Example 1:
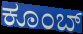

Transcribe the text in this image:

ಕೂಂಬ್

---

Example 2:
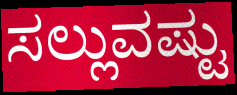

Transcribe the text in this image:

ಸಲ್ಲುವಷ್ಟು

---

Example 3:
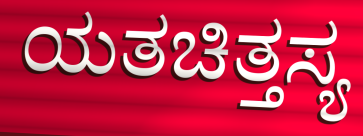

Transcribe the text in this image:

ಯತಚಿತ್ತಸ್ಯ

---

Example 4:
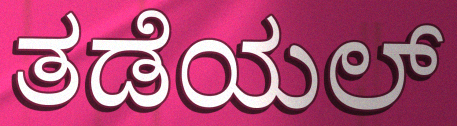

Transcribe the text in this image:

ತಡೆಯಲ್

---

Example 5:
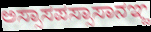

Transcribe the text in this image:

ಅಸ್ಸಾಸಪಸ್ಸಾಸಾನಞ್ಚ